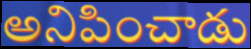
అనిపించాడు